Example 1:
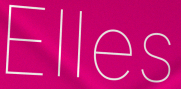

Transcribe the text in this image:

Elles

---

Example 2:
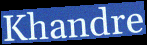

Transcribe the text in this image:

Khandre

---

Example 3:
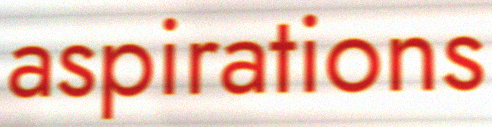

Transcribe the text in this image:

aspirations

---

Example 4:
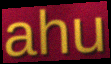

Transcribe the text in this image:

ahu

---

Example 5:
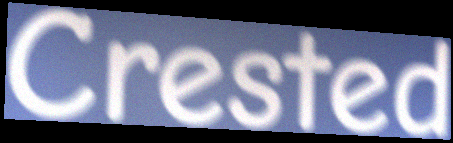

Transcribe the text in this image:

Crested